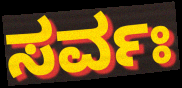
ಸರ್ವಃ